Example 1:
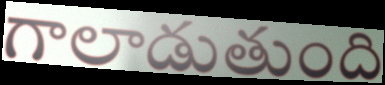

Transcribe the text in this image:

గాలాడుతుంది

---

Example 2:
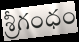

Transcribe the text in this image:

శ్రీగంధం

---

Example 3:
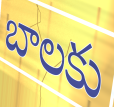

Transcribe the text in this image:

బాలకు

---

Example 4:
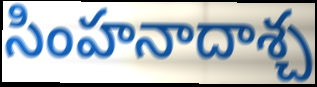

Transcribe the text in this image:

సింహనాదాశ్చ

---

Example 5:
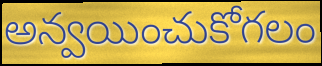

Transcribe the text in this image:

అన్వయించుకోగలం